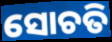
ସୋଚତି